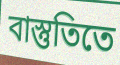
বাস্তুতিতে